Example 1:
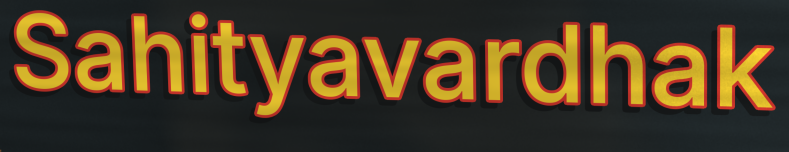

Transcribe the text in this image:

Sahityavardhak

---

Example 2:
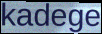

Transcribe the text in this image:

kadege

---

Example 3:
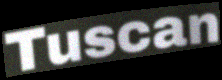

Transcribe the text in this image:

Tuscan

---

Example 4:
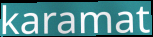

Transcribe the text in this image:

karamat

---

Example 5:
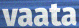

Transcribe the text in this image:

vaata